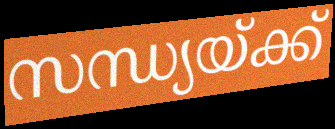
സന്ധ്യയ്ക്ക്